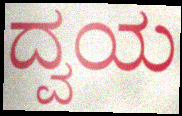
ದ್ವಯ